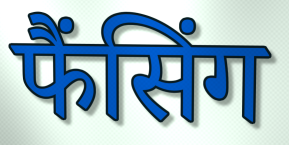
फैंसिंग